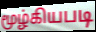
மூழ்கியபடி